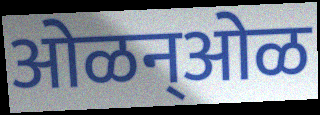
ओळन्ओळ